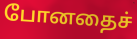
போனதைச்